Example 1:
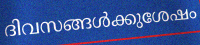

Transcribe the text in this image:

ദിവസങ്ങൾക്കുശേഷം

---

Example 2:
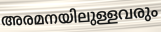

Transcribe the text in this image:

അരമനയിലുള്ളവരും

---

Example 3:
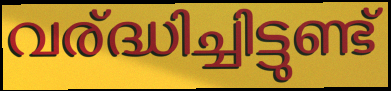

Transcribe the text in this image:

വര്ദ്ധിച്ചിട്ടുണ്ട്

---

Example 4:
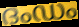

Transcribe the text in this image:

ദംഡം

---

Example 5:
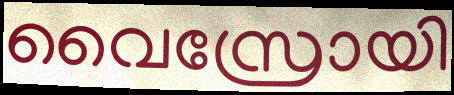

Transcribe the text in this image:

വൈസ്രോയി